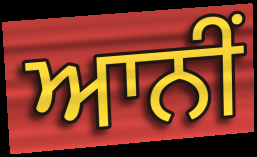
ਆਨੀਂ